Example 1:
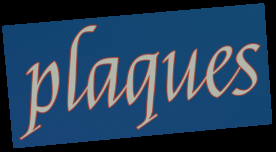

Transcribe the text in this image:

plaques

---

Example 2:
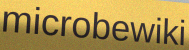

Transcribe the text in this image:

microbewiki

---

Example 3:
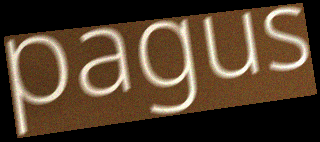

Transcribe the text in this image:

pagus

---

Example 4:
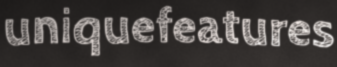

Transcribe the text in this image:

uniquefeatures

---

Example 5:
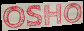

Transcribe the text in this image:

OSHO